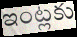
ఇంట్లకు